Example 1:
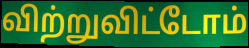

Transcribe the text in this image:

விற்றுவிட்டோம்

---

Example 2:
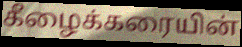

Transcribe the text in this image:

கீழைக்கரையின்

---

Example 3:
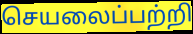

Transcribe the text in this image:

செயலைப்பற்றி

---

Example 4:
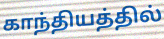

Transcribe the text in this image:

காந்தியத்தில்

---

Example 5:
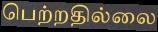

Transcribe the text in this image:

பெற்றதில்லை